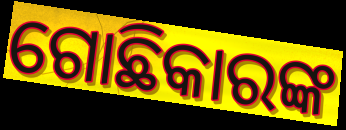
ଗୋଛିକାରଙ୍କ